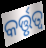
କର୍ତ୍ତୃତ୍ଵ